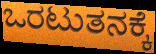
ಒರಟುತನಕ್ಕೆ